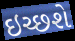
ઇચ્છશે